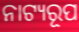
ନାଟ୍ୟରୂପ